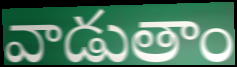
వాడుతాం